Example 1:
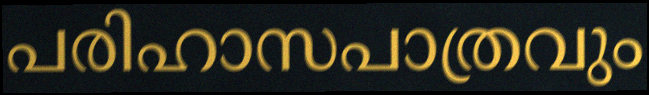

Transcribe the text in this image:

പരിഹാസപാത്രവും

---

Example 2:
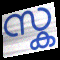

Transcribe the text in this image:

സ്ക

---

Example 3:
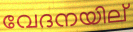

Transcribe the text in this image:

വേദനയില്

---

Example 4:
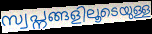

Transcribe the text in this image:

സ്വപ്നങ്ങളിലൂടെയുള്ള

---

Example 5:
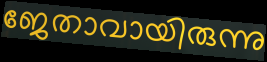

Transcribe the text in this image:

ജേതാവായിരുന്നു